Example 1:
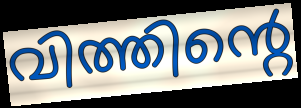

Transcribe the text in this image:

വിത്തിന്റെ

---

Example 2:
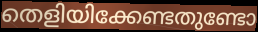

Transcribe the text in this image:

തെളിയിക്കേണ്ടതുണ്ടോ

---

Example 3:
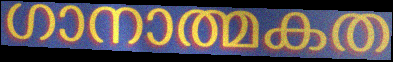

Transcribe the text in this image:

ഗാനാത്മകത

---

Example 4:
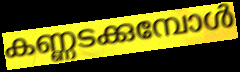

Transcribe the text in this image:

കണ്ണടക്കുമ്പോൾ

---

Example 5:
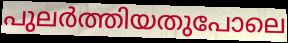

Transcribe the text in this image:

പുലർത്തിയതുപോലെ